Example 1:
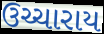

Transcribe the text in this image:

ઉચ્ચારાય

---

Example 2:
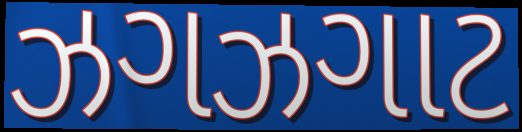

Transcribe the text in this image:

ઝગઝગાટ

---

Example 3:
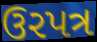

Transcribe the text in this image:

ઉરપત્ર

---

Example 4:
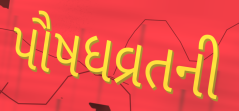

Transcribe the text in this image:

પૌષધવ્રતની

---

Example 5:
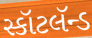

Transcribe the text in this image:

સ્કૉટલૅન્ડ